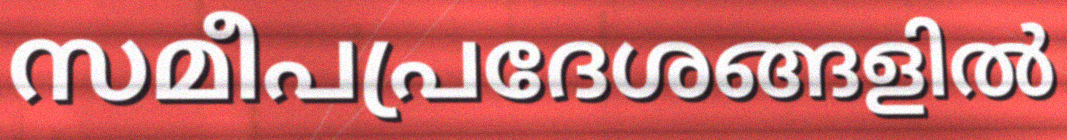
സമീപപ്രദേശങ്ങളിൽ